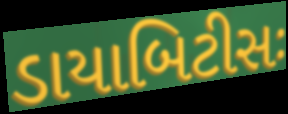
ડાયાબિટીસઃ